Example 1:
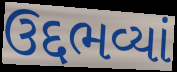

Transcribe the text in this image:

ઉદ્દભવ્યાં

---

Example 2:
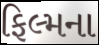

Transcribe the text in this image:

ફિલ્મના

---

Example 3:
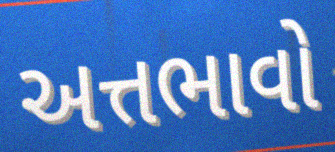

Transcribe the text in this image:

અત્તભાવો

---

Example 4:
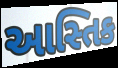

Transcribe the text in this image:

આસ્તિક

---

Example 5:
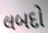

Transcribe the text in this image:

લબદો